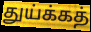
துய்க்கத்